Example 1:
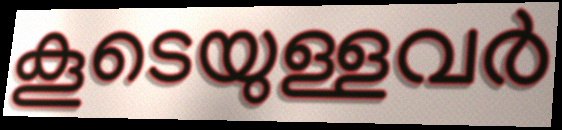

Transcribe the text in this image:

കൂടെയുള്ളവർ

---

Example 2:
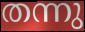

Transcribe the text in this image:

തന്നു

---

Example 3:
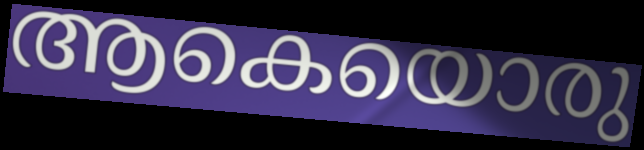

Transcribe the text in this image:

ആകെയൊരു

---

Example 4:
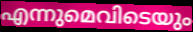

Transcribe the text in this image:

എന്നുമെവിടെയും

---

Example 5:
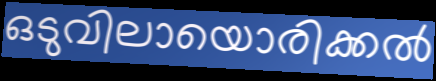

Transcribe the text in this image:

ഒടുവിലായൊരിക്കൽ